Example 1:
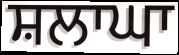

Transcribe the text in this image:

ਸ਼ਲਾਘਾ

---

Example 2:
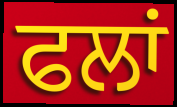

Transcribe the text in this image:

ਫਲਾਂ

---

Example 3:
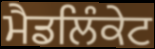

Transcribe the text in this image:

ਮੈਡਲਿੰਕੇਟ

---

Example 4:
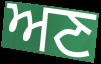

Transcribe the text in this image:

ਅਣ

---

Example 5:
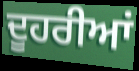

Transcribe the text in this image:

ਦੂਹਰੀਆਂ